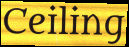
Ceiling